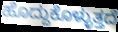
ಹೊದ್ದುಕೊಳ್ಳುತ್ತದೆ